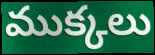
ముక్కలు